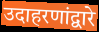
उदाहरणांद्वारे